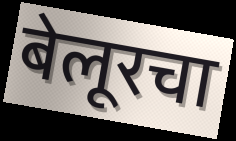
बेलूरचा